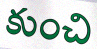
కుంచి